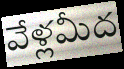
వేళ్లమీద